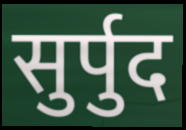
सुर्पुद